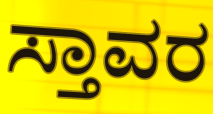
ಸ್ತಾವರ